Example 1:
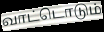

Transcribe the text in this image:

வாட்டொடும்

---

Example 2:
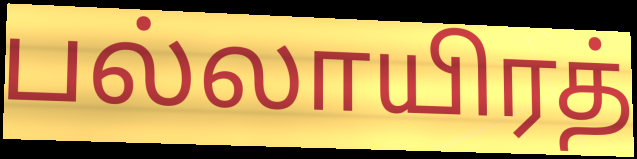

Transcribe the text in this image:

பல்லாயிரத்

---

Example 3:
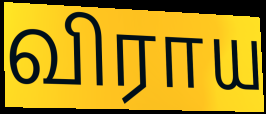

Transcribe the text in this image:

விராய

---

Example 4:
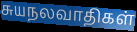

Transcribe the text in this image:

சுயநலவாதிகள்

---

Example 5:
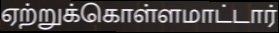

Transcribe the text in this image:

ஏற்றுக்கொள்ளமாட்டார்